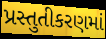
પ્રસ્તુતીકરણમાં